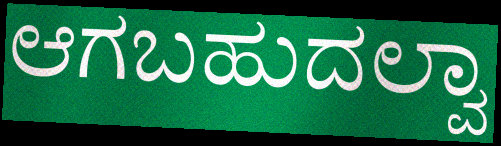
ಆಗಬಹುದಲ್ವಾ